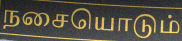
நசையொடும்